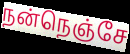
நன்நெஞ்சே